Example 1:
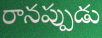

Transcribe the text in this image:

రానప్పుడు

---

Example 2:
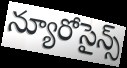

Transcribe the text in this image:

న్యూరోసైన్స్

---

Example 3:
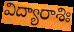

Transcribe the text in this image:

విద్యారాశిః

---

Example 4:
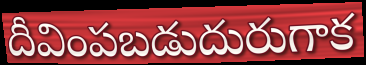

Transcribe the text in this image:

దీవింపబడుదురుగాక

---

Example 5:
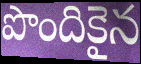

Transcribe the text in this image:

పొందికైన